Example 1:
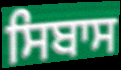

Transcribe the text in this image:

ਸਿਬਾਸ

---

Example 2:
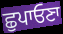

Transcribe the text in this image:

ਛੁਪਾਓਣਾ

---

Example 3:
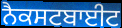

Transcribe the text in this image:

ਨੈਕਸਟਬਾਈਟ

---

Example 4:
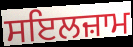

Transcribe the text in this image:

ਸਇਲਜ਼ਾਮ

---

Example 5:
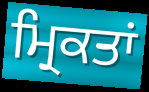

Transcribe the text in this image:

ਮ੍ਰਿਕਤਾਂ